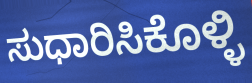
ಸುಧಾರಿಸಿಕೊಳ್ಳಿ